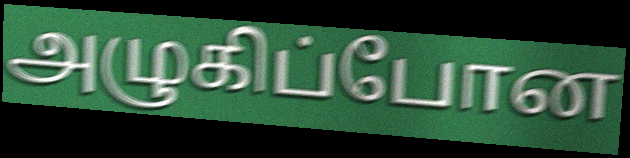
அழுகிப்போன